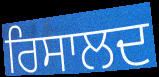
ਰਿਸਾਲਦ